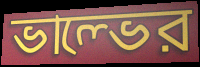
ভাল্ভের